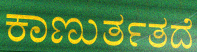
ಕಾಣುರ್ತತದೆ